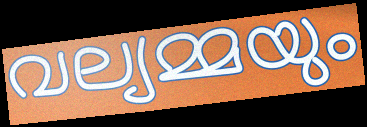
വല്യമ്മയും